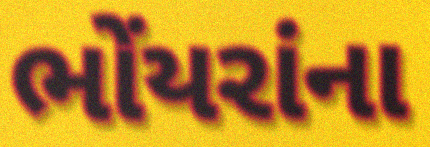
ભોંયરાંના